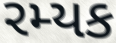
રમ્યક